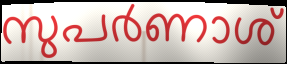
സുപർണാശ്